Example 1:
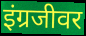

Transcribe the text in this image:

इंग्रजीवर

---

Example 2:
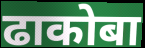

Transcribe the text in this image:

ढाकोबा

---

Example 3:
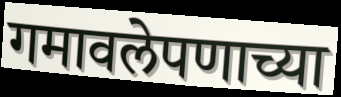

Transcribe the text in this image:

गमावलेपणाच्या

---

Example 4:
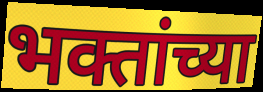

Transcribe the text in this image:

भक्तांच्या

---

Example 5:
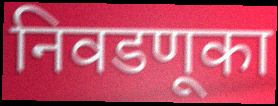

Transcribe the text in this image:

निवडणूका